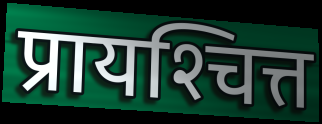
प्रायश्चित्त